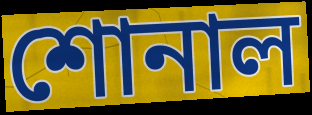
শোনাল